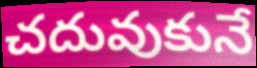
చదువుకునే